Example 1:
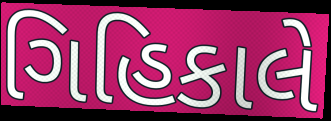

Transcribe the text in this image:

ગિહિકાલે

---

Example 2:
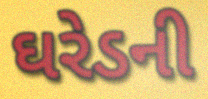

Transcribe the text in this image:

ઘરેડની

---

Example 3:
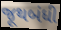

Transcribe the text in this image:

જૂથબંધી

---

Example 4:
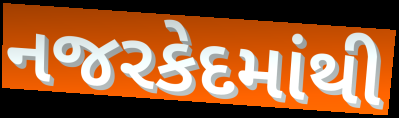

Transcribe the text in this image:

નજરકેદમાંથી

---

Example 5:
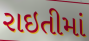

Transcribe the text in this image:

રાઇતીમાં